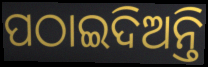
ପଠାଇଦିଅନ୍ତି